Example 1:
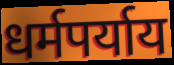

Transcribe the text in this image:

धर्मपर्याय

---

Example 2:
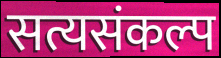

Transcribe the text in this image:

सत्यसंकल्प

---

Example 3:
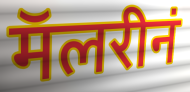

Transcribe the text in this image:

मॅलरीनं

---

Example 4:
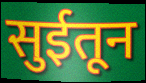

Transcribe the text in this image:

सुईतून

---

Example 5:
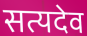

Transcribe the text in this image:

सत्यदेव